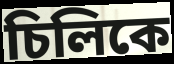
চিলিকে